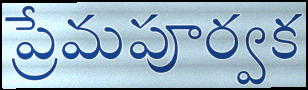
ప్రేమపూర్వక